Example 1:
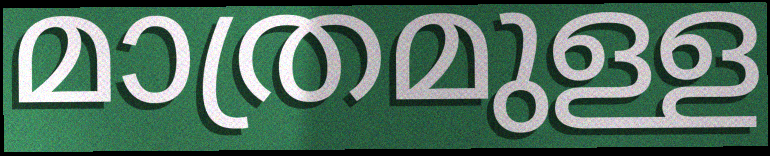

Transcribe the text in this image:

മാത്രമുള്ള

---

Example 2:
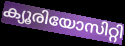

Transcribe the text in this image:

ക്യൂരിയോസിറ്റി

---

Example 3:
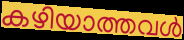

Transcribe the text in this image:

കഴിയാത്തവൾ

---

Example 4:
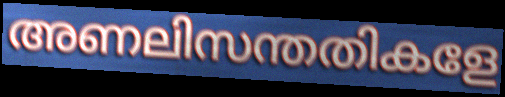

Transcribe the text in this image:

അണലിസന്തതികളേ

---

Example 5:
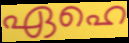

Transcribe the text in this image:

ഏഹെ